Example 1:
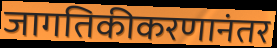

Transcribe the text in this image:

जागतिकीकरणानंतर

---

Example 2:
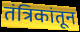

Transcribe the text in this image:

तंत्रिकांतून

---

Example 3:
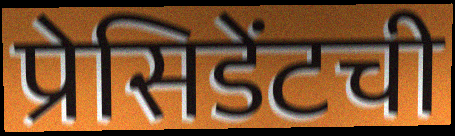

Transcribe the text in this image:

प्रेसिडेंटची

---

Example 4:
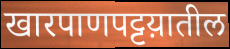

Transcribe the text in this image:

खारपाणपट्टय़ातील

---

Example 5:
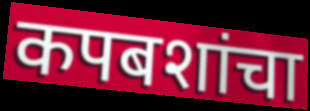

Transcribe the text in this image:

कपबशांचा